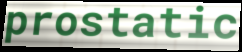
prostatic